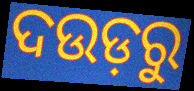
ଦଉଡ଼ରୁ